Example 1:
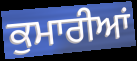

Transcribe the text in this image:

ਕੁਮਾਰੀਆਂ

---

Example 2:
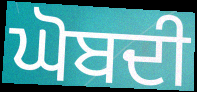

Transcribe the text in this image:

ਘੋਬਦੀ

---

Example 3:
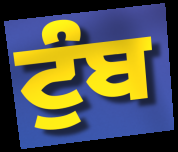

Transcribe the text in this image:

ਟੁੰਬ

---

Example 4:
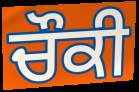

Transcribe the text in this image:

ਚੌਕੀ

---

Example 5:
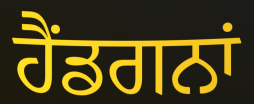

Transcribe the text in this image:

ਹੈਂਡਗਨਾਂ